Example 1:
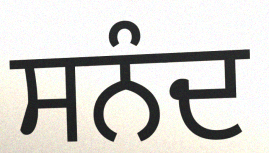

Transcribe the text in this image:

ਸਨੰਦ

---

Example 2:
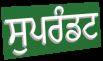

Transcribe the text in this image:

ਸੁਪਰੰਡਟ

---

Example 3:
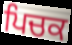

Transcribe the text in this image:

ਪਿਚਕ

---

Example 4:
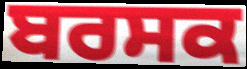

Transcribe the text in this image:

ਬਰਸਕ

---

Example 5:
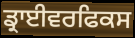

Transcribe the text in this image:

ਡ੍ਰਾਈਵਰਫਿਕਸ